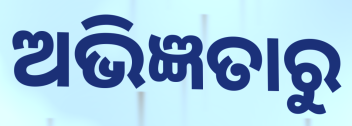
ଅଭିଜ୍ଞତାରୁ